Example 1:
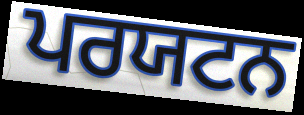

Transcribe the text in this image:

ਪਰਯਟਨ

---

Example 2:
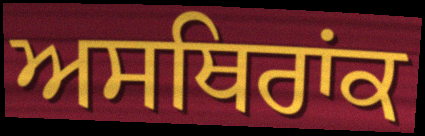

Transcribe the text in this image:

ਅਸਥਿਰਾਂਕ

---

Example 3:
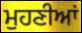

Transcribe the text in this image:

ਮੁਹਣੀਆਂ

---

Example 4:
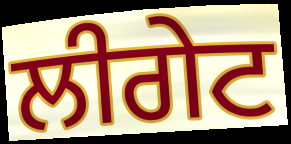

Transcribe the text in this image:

ਲੀਗੇਟ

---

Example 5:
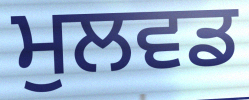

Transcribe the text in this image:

ਮੁਲਵਡ